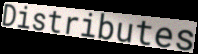
Distributes